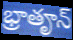
భ్రాతౄన్